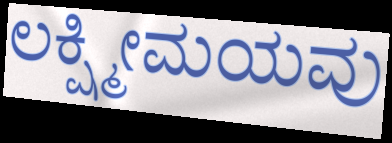
ಲಕ್ಷ್ಮೀಮಯವು